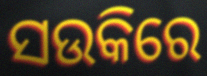
ସଉକିରେ